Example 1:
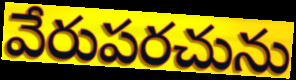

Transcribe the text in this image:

వేరుపరచును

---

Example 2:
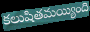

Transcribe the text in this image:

కలుషితమయ్యింది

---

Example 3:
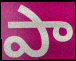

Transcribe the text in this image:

పా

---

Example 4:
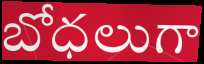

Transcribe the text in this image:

బోధలుగా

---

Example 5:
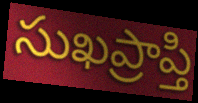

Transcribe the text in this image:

సుఖప్రాప్తి